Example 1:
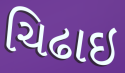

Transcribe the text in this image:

ચિઢાઇ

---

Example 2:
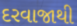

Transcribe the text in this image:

દરવાજાથી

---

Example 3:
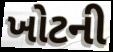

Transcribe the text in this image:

ખોટની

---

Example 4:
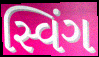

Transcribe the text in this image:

સ્વિંગ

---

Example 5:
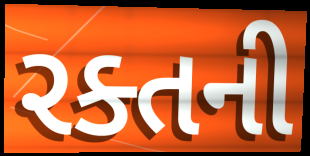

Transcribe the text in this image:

રક્તની